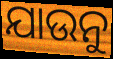
ଯାଉନୁ